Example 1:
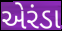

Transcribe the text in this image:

એરંડા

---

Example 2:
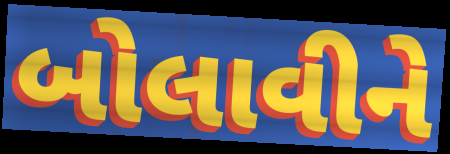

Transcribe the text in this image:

બોલાવીને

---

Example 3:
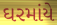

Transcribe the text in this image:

ઘરમાંયે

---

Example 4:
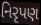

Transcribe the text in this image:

નિરૃપણ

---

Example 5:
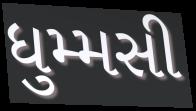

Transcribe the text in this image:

ધુમ્મસી